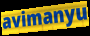
avimanyu